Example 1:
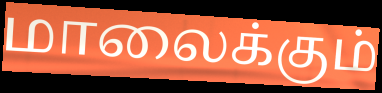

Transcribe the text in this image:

மாலைக்கும்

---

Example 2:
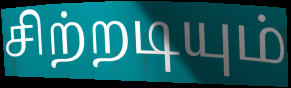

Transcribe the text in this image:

சிற்றடியும்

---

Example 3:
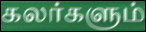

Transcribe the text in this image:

கலர்களும்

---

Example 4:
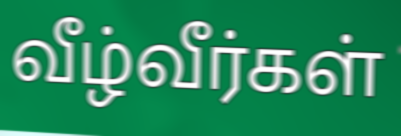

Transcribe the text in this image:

வீழ்வீர்கள்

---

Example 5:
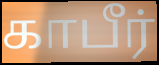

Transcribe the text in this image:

காபீர்